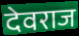
देवराज